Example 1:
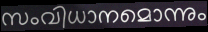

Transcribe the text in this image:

സംവിധാനമൊന്നും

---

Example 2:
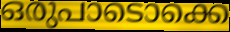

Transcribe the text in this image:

ഒരുപാടൊക്കെ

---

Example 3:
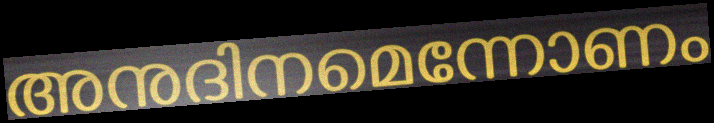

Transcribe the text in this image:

അനുദിനമെന്നോണം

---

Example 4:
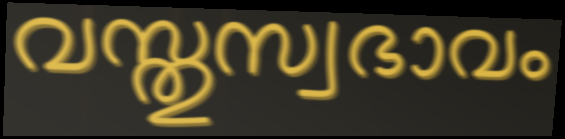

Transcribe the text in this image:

വസ്തുസ്വഭാവം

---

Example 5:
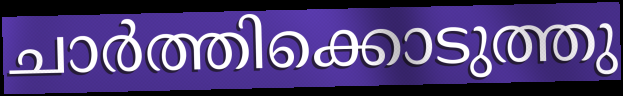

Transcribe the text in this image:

ചാർത്തിക്കൊടുത്തു